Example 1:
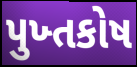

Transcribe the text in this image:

પુખ્તકોષ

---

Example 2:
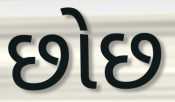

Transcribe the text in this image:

છોછ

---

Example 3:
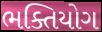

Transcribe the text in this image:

ભક્તિયોગ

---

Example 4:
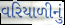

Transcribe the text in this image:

વરિયાળીનું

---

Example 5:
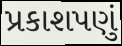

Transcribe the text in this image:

પ્રકાશપણું